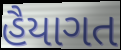
હૈયાગત